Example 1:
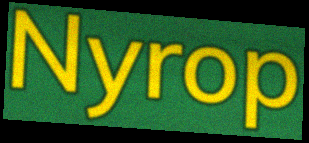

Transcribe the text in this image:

Nyrop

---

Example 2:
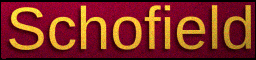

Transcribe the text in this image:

Schofield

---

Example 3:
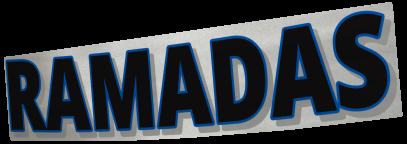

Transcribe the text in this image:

RAMADAS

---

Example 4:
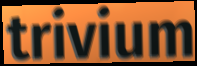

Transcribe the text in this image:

trivium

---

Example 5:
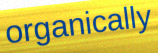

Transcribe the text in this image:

organically